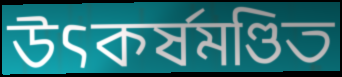
উৎকর্ষমণ্ডিত